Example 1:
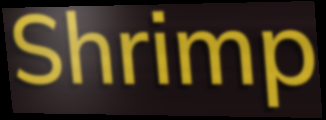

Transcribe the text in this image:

Shrimp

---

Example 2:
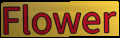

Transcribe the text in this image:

Flower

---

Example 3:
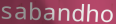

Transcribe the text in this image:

sabandho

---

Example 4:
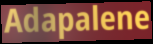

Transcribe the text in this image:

Adapalene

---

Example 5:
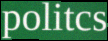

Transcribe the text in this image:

politcs